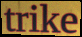
trike